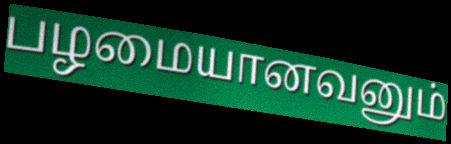
பழமையானவனும்